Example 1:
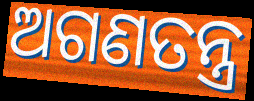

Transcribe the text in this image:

ଅଗଣତନ୍ତ୍ର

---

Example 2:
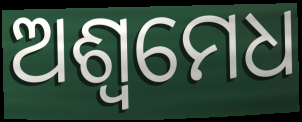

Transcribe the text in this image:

ଅଶ୍ବମେଧ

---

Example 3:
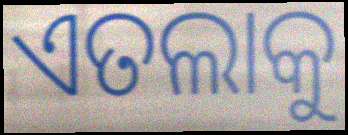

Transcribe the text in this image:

ଏତଲାକୁ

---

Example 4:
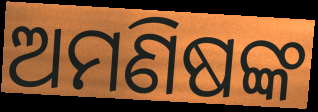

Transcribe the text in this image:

ଅମଣିଷଙ୍କ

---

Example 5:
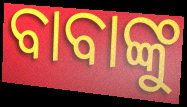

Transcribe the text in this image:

ବାବାଙ୍କୁ